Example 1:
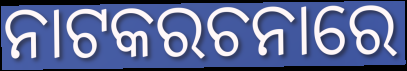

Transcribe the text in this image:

ନାଟକରଚନାରେ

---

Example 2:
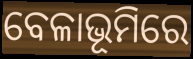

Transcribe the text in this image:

ବେଳାଭୂମିରେ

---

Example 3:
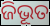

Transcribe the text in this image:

ଜିଭୂତ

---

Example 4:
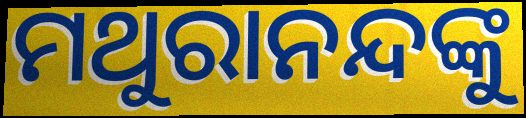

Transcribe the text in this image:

ମଥୁରାନନ୍ଦଙ୍କୁ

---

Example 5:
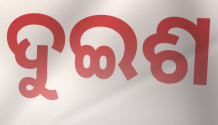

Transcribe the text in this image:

ଦୁଇଶ